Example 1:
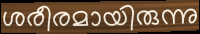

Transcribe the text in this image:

ശരീരമായിരുന്നു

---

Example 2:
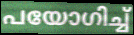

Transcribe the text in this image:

പയോഗിച്ച്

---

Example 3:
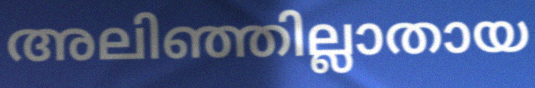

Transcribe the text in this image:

അലിഞ്ഞില്ലാതായ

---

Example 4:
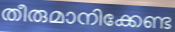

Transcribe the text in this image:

തീരുമാനിക്കേണ്ട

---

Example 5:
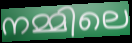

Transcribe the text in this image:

നമ്മിലെ